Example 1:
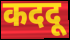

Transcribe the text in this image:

कददू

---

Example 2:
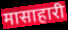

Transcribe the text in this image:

मासाहारी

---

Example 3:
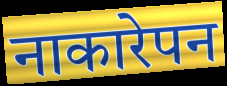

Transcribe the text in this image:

नाकारेपन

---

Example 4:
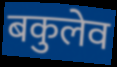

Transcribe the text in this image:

बकुलेव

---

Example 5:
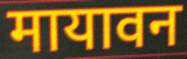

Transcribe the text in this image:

मायावन